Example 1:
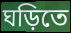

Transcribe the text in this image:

ঘড়িতে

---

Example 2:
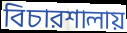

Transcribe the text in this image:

বিচারশালায়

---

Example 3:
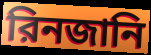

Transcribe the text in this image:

রিনজানি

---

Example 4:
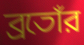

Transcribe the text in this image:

ব্রতোঁর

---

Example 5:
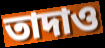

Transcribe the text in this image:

তাদাও